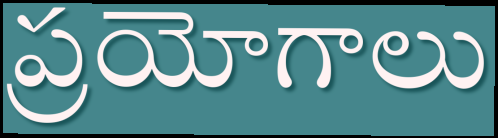
ప్రయోగాలు